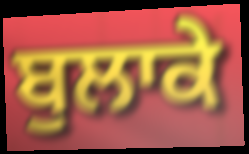
ਬੁਲਾਕੇ